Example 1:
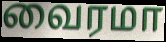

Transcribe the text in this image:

வைரமா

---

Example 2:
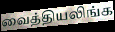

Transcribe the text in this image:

வைத்தியலிங்க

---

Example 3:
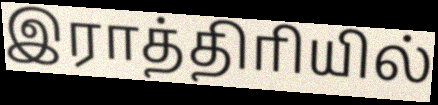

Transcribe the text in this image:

இராத்திரியில்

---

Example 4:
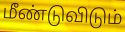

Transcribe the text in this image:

மீண்டுவிடும்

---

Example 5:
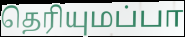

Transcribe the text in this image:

தெரியுமப்பா